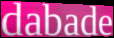
dabade